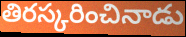
తిరస్కరించినాడు